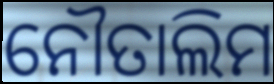
ନୌତାଲିମ